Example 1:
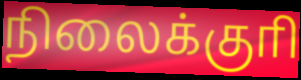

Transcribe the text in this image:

நிலைக்குரி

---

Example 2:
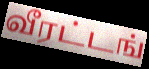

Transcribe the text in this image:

வீரட்டங்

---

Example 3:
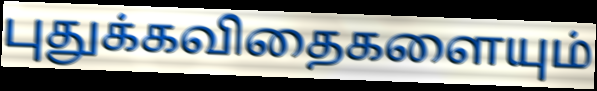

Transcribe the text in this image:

புதுக்கவிதைகளையும்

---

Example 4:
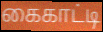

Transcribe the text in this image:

கைகாட்டி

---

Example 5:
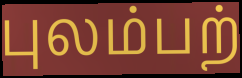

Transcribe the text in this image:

புலம்பற்